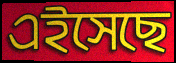
এইসেছে